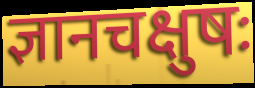
ज्ञानचक्षुषः